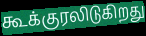
கூக்குரலிடுகிறது